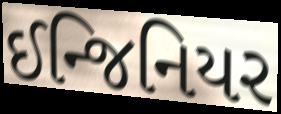
ઈન્જિનિયર